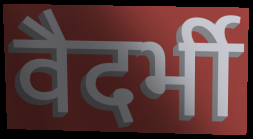
वैदर्भी